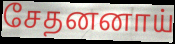
சேதனனாய்